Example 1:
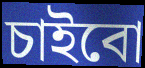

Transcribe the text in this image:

চাইবো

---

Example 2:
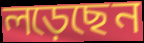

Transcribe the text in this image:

লড়েছেন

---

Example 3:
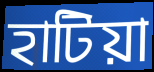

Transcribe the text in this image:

হাটিয়া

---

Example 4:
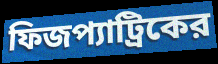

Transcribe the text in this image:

ফিজপ্যাট্রিকের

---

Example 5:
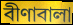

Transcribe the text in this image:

বীণাবালা